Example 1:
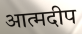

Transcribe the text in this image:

आत्मदीप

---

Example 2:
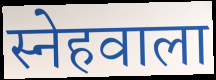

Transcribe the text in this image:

स्नेहवाला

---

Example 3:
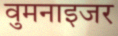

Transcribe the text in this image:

वुमनाइजर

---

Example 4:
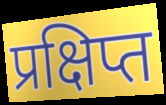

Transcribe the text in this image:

प्रक्षिप्त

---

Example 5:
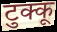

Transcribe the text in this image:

टुक्कू